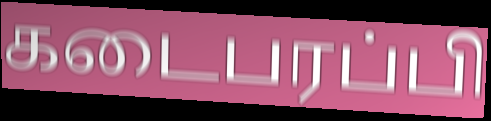
கடைபரப்பி